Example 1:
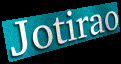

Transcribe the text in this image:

Jotirao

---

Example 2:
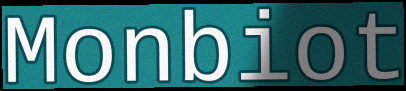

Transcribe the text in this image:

Monbiot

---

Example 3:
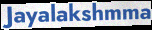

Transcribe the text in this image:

Jayalakshmma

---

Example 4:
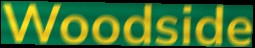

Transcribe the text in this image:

Woodside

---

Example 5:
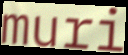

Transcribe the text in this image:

muri